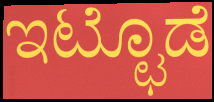
ಇಟ್ಟೊಡೆ